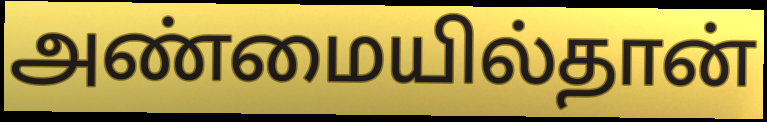
அண்மையில்தான்